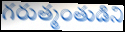
గరుత్మంతుడిని